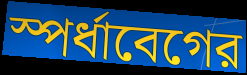
স্পর্ধাবেগের